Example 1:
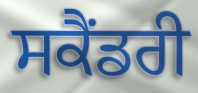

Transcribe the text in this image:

ਸਕੈਂਡਰੀ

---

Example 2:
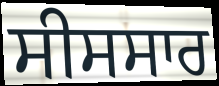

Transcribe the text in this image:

ਸੀਸਸਾਰ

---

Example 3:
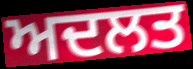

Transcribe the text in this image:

ਅਦਲਤ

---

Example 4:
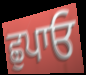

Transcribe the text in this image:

ਛੁਪਾਓ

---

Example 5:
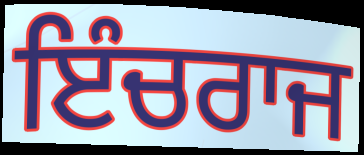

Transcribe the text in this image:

ਇੰਚਰਾਜ